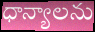
ధాన్యాలను